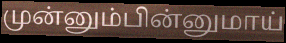
முன்னும்பின்னுமாய்